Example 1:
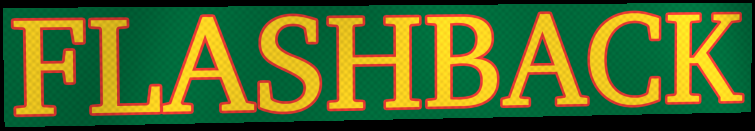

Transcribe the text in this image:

FLASHBACK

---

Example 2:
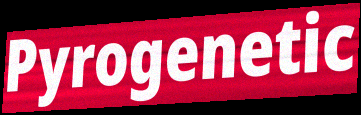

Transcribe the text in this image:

Pyrogenetic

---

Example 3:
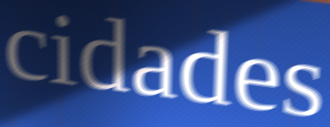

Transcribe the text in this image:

cidades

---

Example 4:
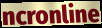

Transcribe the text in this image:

ncronline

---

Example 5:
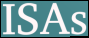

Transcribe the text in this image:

ISAs